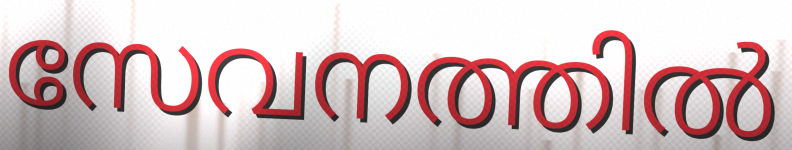
സേവനത്തിൽ